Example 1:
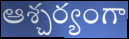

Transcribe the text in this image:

ఆశ్చర్యంగా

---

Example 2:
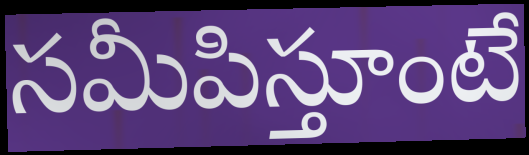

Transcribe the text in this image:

సమీపిస్తూంటే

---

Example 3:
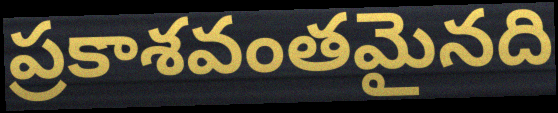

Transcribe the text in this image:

ప్రకాశవంతమైనది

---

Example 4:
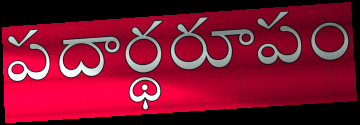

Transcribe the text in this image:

పదార్థరూపం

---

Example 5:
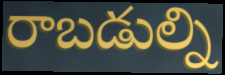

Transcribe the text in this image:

రాబడుల్ని